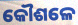
କୌଶଳେ